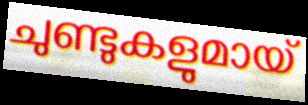
ചുണ്ടുകളുമായ്